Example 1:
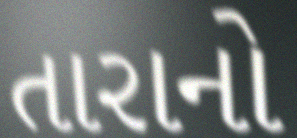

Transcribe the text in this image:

તારાનો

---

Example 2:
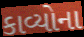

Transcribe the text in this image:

કાવ્યોના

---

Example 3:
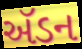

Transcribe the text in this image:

ઍડન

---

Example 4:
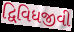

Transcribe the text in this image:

દ્વિવિધજીવી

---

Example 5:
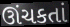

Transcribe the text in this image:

ઊંચકતાં